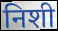
निशी